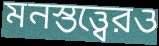
মনস্তত্ত্বেরও